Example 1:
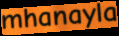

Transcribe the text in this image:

mhanayla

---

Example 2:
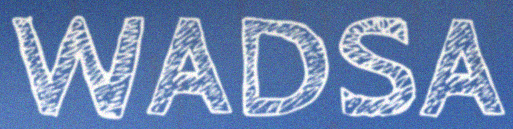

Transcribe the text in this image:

WADSA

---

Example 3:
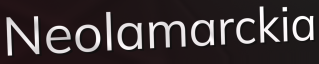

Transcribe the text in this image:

Neolamarckia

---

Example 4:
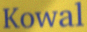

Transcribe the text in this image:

Kowal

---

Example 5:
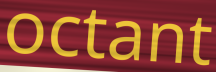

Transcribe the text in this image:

octant